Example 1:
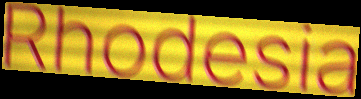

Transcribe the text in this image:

Rhodesia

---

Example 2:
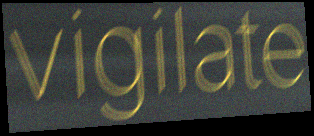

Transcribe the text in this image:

vigilate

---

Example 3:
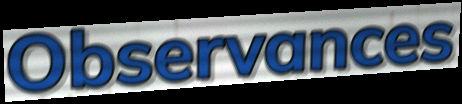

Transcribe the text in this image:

Observances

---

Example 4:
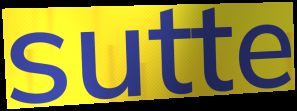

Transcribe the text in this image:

sutte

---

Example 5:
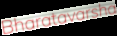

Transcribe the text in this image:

Bharatavarsha